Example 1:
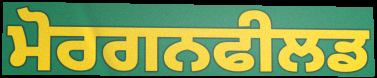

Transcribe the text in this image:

ਮੋਰਗਨਫੀਲਡ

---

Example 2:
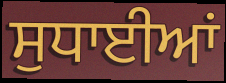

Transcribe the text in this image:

ਸੁਧਾਈਆਂ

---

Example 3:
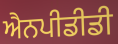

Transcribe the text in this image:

ਐਨਪੀਡੀਡੀ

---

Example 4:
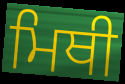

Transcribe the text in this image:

ਮਿਥੀ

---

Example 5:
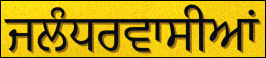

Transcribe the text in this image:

ਜਲੰਧਰਵਾਸੀਆਂ